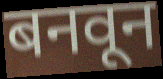
बनवून